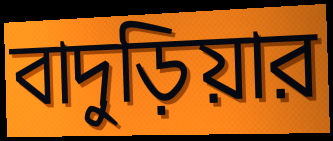
বাদুড়িয়ার